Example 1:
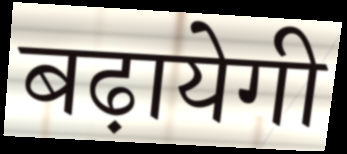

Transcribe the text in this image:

बढ़ायेगी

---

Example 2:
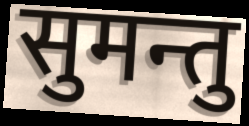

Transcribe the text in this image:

सुमन्तु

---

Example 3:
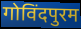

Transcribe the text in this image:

गोविंदपुरम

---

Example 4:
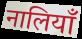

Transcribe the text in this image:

नालियाँ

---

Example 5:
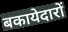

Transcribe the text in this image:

बकायेदारों